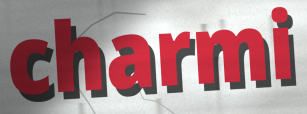
charmi